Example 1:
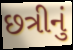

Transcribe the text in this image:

છત્રીનું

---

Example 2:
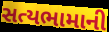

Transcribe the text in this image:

સત્યભામાની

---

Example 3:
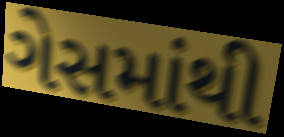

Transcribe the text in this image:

ગેસમાંથી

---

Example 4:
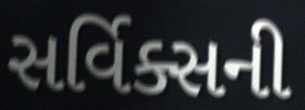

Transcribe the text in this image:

સર્વિક્સની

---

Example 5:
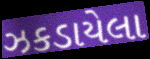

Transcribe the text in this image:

ઝકડાયેલા